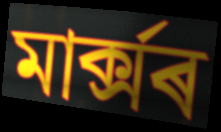
মাৰ্ক্সৰ